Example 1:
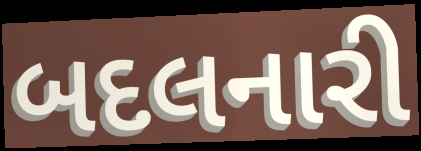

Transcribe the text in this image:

બદલનારી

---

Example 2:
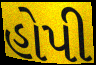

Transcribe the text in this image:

હોપી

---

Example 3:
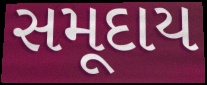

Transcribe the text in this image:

સમૂદાય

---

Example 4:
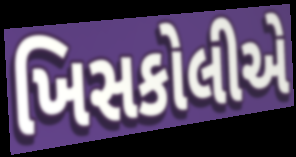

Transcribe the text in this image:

ખિસકોલીએ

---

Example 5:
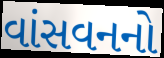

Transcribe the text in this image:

વાંસવનનો